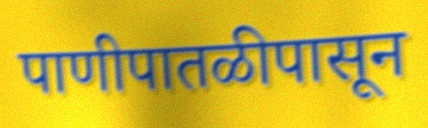
पाणीपातळीपासून